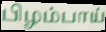
பிழம்பாய்